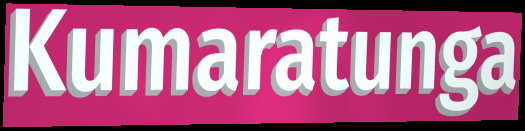
Kumaratunga